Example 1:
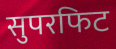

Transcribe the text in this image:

सुपरफिट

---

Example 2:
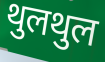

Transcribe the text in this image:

थुलथुल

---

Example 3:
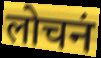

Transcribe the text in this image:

लोचनं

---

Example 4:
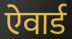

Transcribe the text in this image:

ऐवार्ड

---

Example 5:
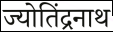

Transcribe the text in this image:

ज्योतिंद्रनाथ